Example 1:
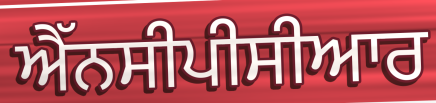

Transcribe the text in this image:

ਐੱਨਸੀਪੀਸੀਆਰ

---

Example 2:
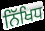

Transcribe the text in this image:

ਨਿੱਖਿਧ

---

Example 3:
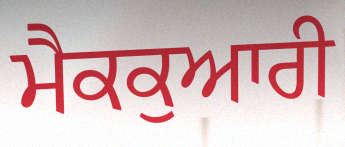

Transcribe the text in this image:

ਮੈਕਕੁਆਰੀ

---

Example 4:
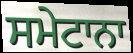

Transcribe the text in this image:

ਸਮੇਟਾਨਾ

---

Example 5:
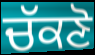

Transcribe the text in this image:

ਚੱਕਣੋ